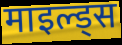
माइल्ड्स